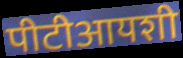
पीटीआयशी